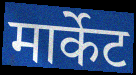
मार्केट